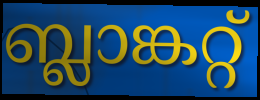
ബ്ലാങ്കറ്റ്